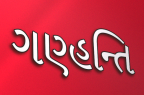
ગણ્હન્તિ